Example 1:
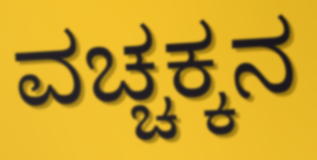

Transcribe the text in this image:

ವಚ್ಚಕ್ಕನ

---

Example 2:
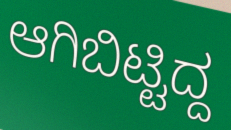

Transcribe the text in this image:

ಆಗಿಬಿಟ್ಟಿದ್ದ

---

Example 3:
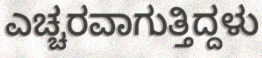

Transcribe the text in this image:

ಎಚ್ಚರವಾಗುತ್ತಿದ್ದಳು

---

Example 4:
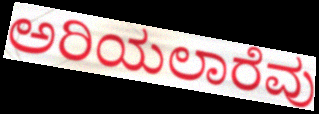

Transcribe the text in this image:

ಅರಿಯಲಾರೆವು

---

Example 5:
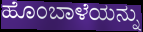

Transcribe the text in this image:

ಹೊಂಬಾಳೆಯನ್ನು